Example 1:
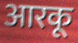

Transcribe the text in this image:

आरकू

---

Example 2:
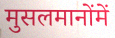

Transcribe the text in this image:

मुसलमानोंमें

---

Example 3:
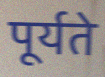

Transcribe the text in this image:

पूर्यते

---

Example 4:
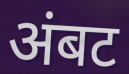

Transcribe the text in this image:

अंबट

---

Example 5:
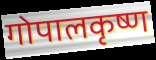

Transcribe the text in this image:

गोपालकृष्ण